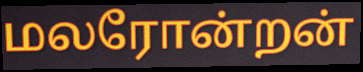
மலரோன்றன்